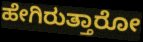
ಹೇಗಿರುತ್ತಾರೋ